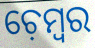
ଚ଼େମ୍ୱର